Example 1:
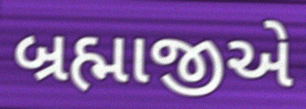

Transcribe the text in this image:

બ્રહ્માજીએ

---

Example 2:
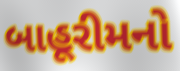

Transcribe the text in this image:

બાહૂરીમનો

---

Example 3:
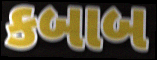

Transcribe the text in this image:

કબાબ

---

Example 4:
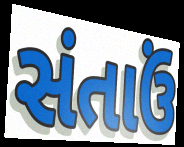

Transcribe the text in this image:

સંતાઉં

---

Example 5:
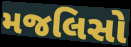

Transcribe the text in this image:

મજલિસો